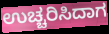
ಉಚ್ಚರಿಸಿದಾಗ